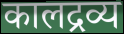
कालद्रव्य